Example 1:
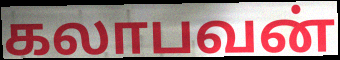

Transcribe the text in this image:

கலாபவன்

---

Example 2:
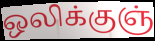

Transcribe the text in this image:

ஒலிக்குஞ்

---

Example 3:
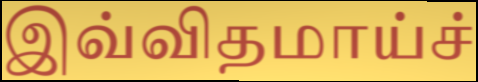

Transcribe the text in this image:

இவ்விதமாய்ச்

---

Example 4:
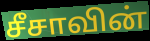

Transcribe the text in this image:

சீசாவின்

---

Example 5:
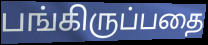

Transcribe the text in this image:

பங்கிருப்பதை